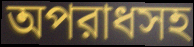
অপরাধসহ